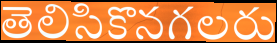
తెలిసికొనగలరు